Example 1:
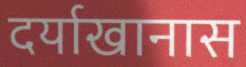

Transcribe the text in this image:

दर्याखानास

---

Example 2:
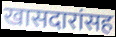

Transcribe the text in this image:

खासदारांसह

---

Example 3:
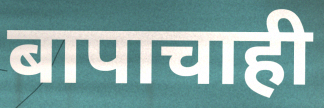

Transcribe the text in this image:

बापाचाही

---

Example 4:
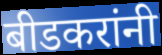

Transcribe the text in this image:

बीडकरांनी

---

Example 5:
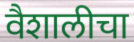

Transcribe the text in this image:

वैशालीचा